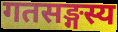
गतसङ्गस्य